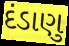
દંડાણુ